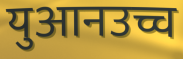
युआनउच्च